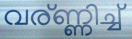
വര്ണ്ണിച്ച്